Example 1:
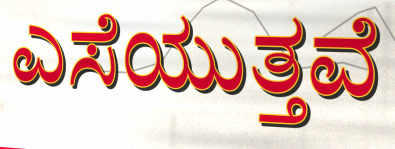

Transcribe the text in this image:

ಎಸೆಯುತ್ತವೆ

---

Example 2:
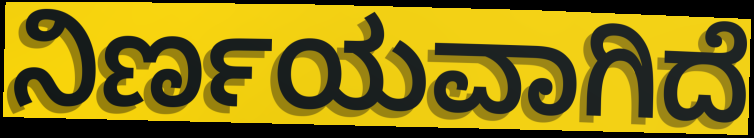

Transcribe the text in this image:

ನಿರ್ಣಯವಾಗಿದೆ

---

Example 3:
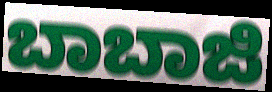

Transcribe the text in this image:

ಬಾಬಾಜಿ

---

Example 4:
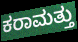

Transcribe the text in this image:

ಕರಾಮತ್ತು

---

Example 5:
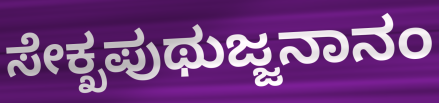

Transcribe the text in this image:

ಸೇಕ್ಖಪುಥುಜ್ಜನಾನಂ